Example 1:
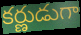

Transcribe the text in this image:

కర్ణుడుగా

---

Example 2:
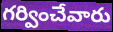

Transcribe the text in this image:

గర్వించేవారు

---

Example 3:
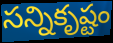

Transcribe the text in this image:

సన్నికృష్టం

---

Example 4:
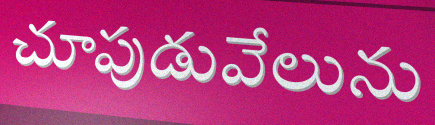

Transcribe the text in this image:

చూపుడువేలును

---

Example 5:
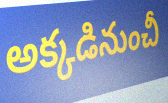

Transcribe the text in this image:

అక్కడినుంచీ